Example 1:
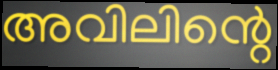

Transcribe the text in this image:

അവിലിന്റെ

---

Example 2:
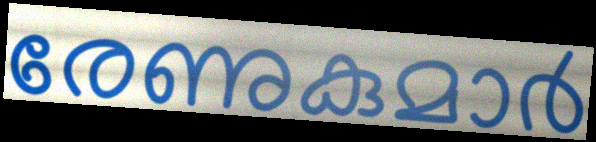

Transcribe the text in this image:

രേണുകുമാർ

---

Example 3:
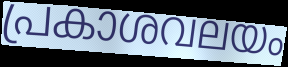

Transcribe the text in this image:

പ്രകാശവലയം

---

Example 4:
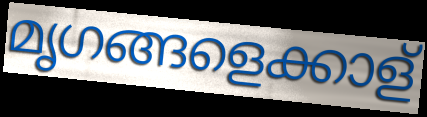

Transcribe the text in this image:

മൃഗങ്ങളെക്കാള്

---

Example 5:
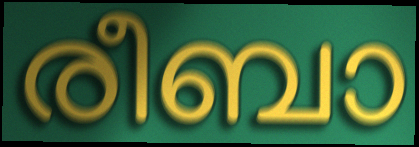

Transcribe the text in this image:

രീബാ